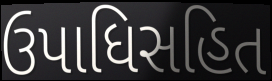
ઉપાધિસહિત